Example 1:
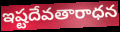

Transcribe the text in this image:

ఇష్టదేవతారాధన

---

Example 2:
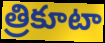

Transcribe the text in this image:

త్రికూటా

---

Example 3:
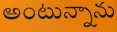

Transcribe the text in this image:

అంటున్నాను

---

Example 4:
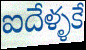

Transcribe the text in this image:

ఐదేళ్ళకే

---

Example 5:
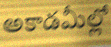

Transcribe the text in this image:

అకాడమీల్లో